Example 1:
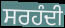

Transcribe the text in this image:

ਸਰਹੰਦੀ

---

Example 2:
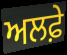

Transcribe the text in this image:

ਅਲਫ਼ੇ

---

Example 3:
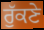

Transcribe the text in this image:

ਰੁੱਕਣੇ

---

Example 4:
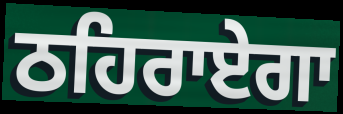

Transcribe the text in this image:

ਠਹਿਰਾਏਗਾ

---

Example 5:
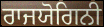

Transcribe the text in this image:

ਰਾਜਯੋਗਿਨੀ